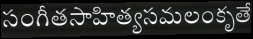
సంగీతసాహిత్యసమలంకృతే